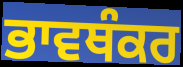
ਭਾਵਥੰਕਰ